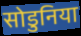
सोडुनिया